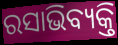
ରସାଭିବ୍ୟକ୍ତି